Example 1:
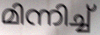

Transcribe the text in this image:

മിന്നിച്ച്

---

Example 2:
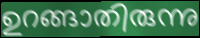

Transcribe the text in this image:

ഉറങ്ങാതിരുന്നു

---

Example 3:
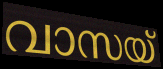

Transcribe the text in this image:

വാസയ്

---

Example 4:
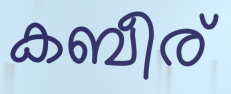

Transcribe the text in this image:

കബീര്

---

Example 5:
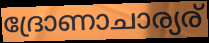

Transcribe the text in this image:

ദ്രോണാചാര്യര്